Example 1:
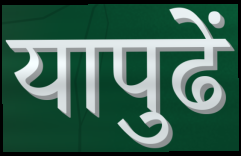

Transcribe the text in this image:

यापुढें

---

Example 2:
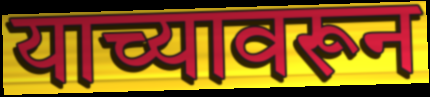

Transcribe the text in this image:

याच्यावरून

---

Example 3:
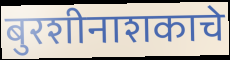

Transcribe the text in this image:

बुरशीनाशकाचे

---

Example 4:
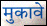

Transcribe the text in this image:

मुकावे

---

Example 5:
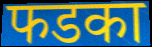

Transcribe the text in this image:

फडका